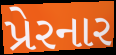
પ્રેરનાર